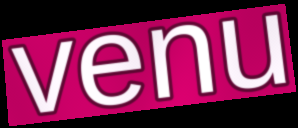
venu